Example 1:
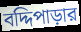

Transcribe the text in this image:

বদ্দিপাড়ার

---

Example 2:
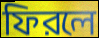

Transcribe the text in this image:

ফিরলে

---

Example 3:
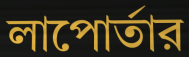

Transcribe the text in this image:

লাপোর্তার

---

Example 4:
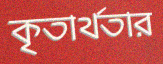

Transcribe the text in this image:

কৃতার্থতার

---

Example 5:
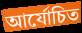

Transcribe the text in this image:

আর্যোচিত